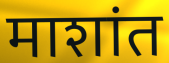
माशांत